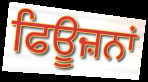
ਫਿਊਜ਼ਨਾਂ